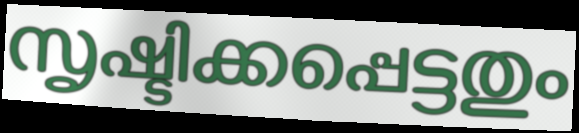
സൃഷ്ടിക്കപ്പെട്ടതും